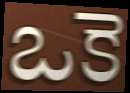
ఒకె